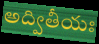
అద్వితీయః